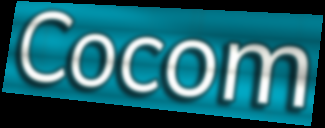
Cocom